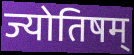
ज्योतिषम्